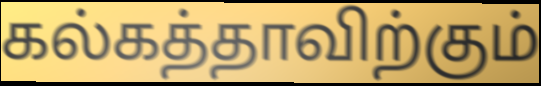
கல்கத்தாவிற்கும்